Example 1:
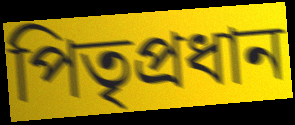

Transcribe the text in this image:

পিতৃপ্রধান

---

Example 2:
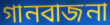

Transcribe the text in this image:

গানবাজনা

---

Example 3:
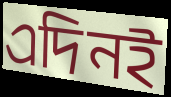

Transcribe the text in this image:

এদিনই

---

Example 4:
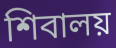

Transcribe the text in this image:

শিবালয়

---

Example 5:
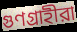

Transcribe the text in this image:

গুণগ্রাহীরা